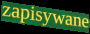
zapisywane